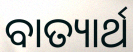
ବାତ୍ୟାର୍ଥ